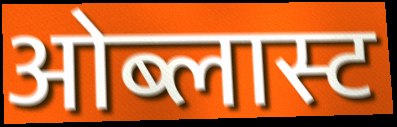
ओब्लास्ट